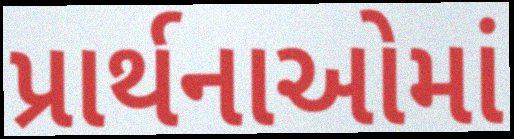
પ્રાર્થનાઓમાં